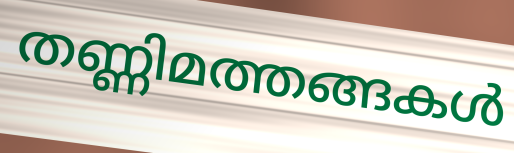
തണ്ണിമത്തങ്ങകൾ